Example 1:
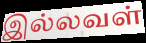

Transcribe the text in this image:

இல்லவள்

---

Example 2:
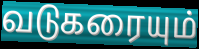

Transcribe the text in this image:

வடுகரையும்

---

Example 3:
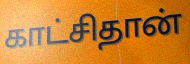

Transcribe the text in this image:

காட்சிதான்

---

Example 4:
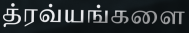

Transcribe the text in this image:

த்ரவ்யங்களை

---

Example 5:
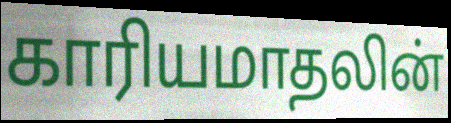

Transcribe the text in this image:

காரியமாதலின்